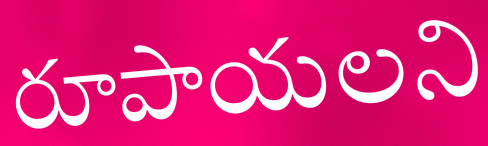
రూపాయలని